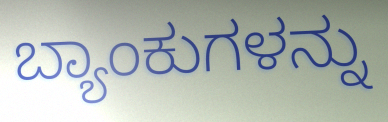
ಬ್ಯಾಂಕುಗಳನ್ನು